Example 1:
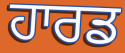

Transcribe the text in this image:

ਹਾਰਡ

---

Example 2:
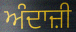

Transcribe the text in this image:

ਅੰਦਾਜ਼ੀ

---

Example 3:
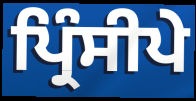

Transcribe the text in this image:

ਪ੍ਰਿੰਸੀਪੇ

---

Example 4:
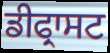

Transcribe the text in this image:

ਡੀਫ੍ਰਾਸਟ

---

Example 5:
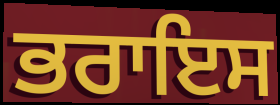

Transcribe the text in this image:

ਭਰਾਇਸ